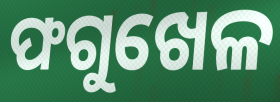
ଫଗୁଖେଳ